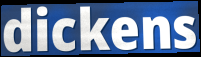
dickens